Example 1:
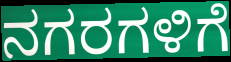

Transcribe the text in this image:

ನಗರಗಳಿಗೆ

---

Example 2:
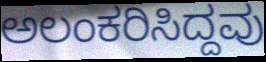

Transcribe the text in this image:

ಅಲಂಕರಿಸಿದ್ದವು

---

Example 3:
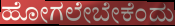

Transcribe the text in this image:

ಹೋಗಲೇಬೇಕೆಂದು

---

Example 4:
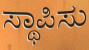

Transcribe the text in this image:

ಸ್ಥಾಪಿಸು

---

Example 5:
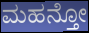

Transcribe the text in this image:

ಮಹನ್ತೋ